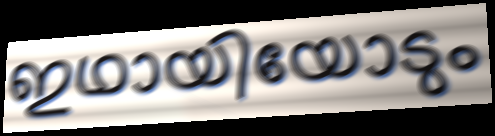
ഇഥായിയോടും